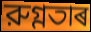
ৰুগ্নতাৰ